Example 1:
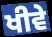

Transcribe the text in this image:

ਖੀਵੇ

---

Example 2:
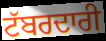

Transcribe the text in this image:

ਟੱਬਰਦਾਰੀ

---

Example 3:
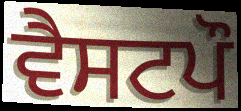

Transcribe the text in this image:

ਵੈਸਟਪੌ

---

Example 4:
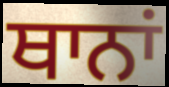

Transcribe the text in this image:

ਥਾਨਾਂ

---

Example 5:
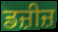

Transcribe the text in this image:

ਡਜ਼ੀਜ਼